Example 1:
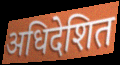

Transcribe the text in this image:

अधिदेशित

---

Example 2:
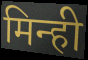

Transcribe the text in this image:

मिन्ही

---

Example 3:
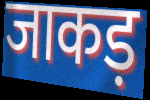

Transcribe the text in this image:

जाकड़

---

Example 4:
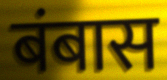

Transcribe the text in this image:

बंबास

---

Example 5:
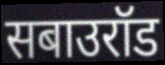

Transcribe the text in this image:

सबाउरॉड